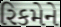
રિકમેને